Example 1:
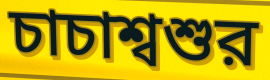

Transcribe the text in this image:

চাচাশ্বশুর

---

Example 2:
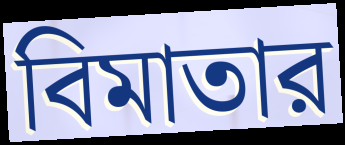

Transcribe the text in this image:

বিমাতার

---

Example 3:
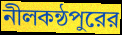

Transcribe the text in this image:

নীলকন্ঠপুরের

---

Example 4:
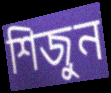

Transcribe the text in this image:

শিজুন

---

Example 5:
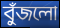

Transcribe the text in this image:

বুঁজলো